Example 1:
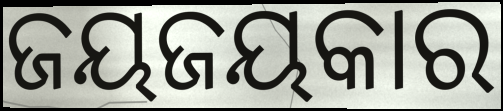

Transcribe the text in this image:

ଜୟଜୟକାର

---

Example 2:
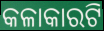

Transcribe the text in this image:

କଳାକାରଟି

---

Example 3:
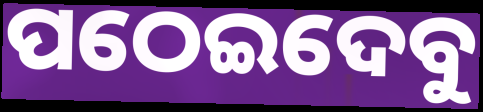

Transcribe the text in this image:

ପଠେଇଦେବୁ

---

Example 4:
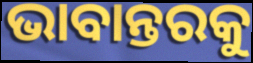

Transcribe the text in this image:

ଭାବାନ୍ତରକୁ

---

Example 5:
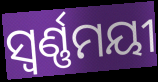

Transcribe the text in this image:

ସ୍ୱର୍ଣ୍ଣମୟୀ